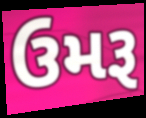
ઉમરૂ